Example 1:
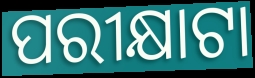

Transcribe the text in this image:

ପରୀକ୍ଷାଟା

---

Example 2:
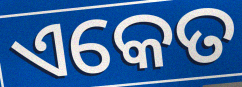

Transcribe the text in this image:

ଏକେତ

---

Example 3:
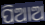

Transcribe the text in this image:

ପିଆଅ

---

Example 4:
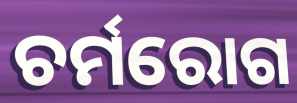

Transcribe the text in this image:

ଚର୍ମରୋଗ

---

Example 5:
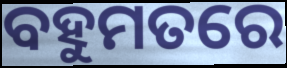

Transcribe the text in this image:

ବହୁମତରେ